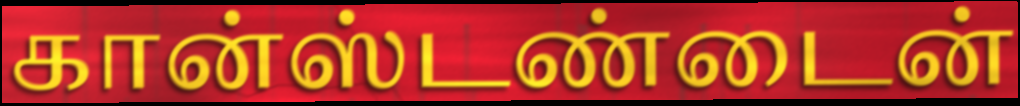
கான்ஸ்டண்டைன்